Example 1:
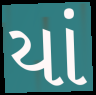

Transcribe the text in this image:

યાં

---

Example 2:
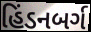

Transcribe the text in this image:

હિંડનબર્ગ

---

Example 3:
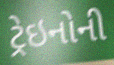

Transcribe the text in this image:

ટ્રેઇનોની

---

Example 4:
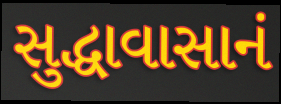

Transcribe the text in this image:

સુદ્ધાવાસાનં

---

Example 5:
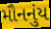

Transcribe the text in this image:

મૌનનુંય